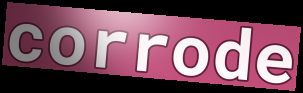
corrode